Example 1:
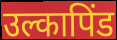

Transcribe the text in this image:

उल्कापिंड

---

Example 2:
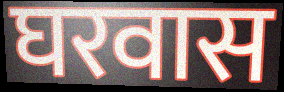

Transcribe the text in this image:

घरवास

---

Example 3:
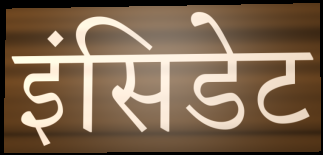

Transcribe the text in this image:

इंसिडेट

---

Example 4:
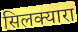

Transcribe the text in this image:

सिलक्यारा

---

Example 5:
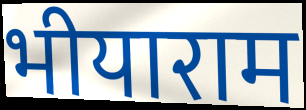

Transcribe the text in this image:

भीयाराम